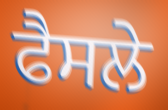
ਫੈਸਲੇ